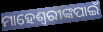
ମାହେଶ୍ୱରୀଙ୍କପାଇଁ